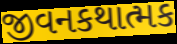
જીવનકથાત્મક